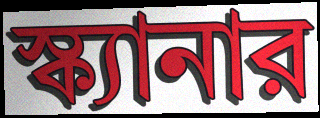
স্ক্যানার